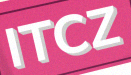
ITCZ